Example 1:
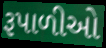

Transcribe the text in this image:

રૂપાળીઓ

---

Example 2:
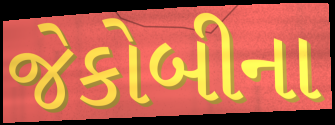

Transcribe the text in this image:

જેકોબીના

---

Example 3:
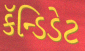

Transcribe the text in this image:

કૅન્ડિડેટ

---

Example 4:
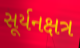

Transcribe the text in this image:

સૂર્યનક્ષત્ર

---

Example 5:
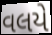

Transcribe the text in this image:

વલયે